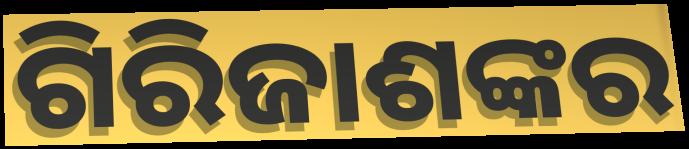
ଗିରିଜାଶଙ୍କର